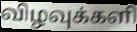
விழவுக்களி